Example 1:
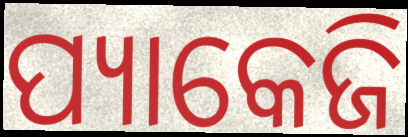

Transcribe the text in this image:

ପ୍ୟାକେଜି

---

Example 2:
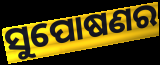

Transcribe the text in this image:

ସୁପୋଷଣର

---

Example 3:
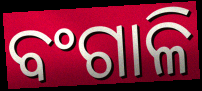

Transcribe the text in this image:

ବଂଗାଳି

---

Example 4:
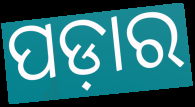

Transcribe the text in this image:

ପଡ଼ାର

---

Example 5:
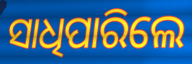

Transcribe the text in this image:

ସାଧିପାରିଲେ